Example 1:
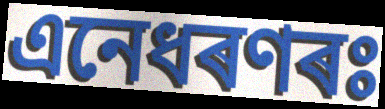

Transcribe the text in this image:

এনেধৰণৰঃ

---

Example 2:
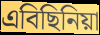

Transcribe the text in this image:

এবিছিনিয়া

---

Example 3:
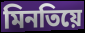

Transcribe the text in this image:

মিনতিয়ে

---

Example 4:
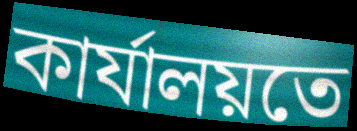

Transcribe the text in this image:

কাৰ্যালয়তে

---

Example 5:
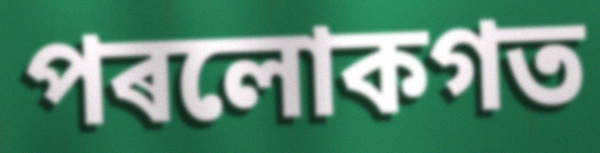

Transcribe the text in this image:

পৰলোকগত